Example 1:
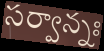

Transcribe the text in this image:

సర్వాన్నః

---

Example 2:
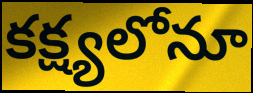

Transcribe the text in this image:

కక్ష్యలోనూ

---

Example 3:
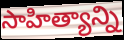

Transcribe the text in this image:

సాహిత్యాన్ని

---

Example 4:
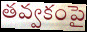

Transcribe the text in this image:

తవ్వకంపై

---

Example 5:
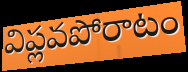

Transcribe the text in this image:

విప్లవపోరాటం